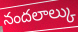
నందలాల్కు